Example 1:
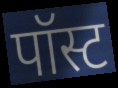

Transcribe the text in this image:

पॉस्ट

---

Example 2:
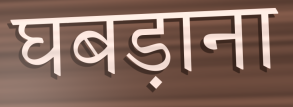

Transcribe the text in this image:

घबड़ाना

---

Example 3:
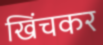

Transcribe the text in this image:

खिंचकर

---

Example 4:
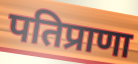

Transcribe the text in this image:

पतिप्राणा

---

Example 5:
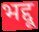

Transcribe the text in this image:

भद्दू